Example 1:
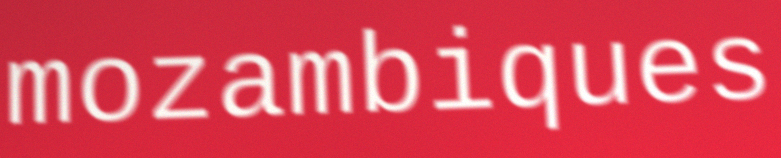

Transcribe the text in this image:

mozambiques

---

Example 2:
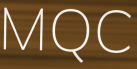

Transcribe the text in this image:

MQC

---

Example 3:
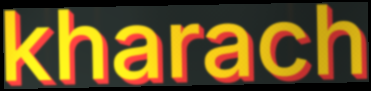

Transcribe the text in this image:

kharach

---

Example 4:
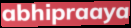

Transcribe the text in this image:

abhipraaya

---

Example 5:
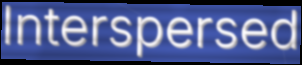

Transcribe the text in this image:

Interspersed